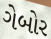
ગેબોર